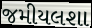
જમીયલશા